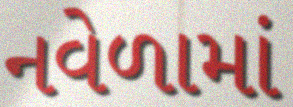
નવેળામાં